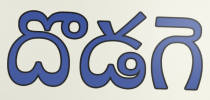
దొడగె